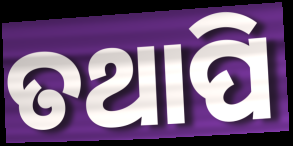
ତଥାପି